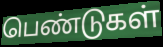
பெண்டுகள்